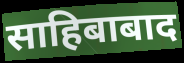
साहिबाबाद